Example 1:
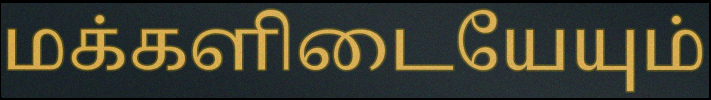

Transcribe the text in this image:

மக்களிடையேயும்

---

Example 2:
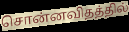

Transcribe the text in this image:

சொன்னவிதத்தில்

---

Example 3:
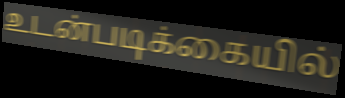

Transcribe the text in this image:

உடன்படிக்கையில்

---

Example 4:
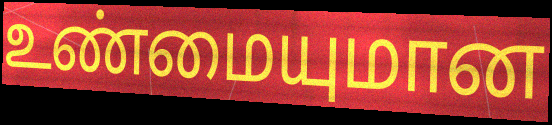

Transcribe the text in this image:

உண்மையுமான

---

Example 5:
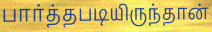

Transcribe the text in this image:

பார்த்தபடியிருந்தான்